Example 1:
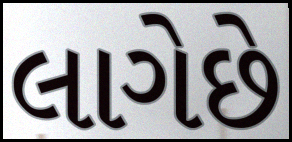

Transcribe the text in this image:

લાગેછે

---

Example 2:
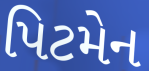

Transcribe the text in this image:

પિટમેન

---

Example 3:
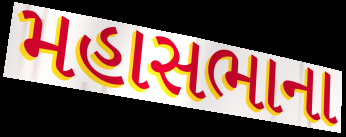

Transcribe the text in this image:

મહાસભાના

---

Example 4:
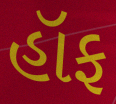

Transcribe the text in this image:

હૉફ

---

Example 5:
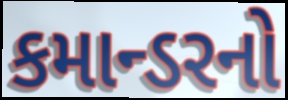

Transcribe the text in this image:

કમાન્ડરનો